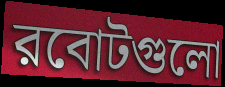
রবোটগুলো